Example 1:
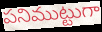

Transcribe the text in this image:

పనిముట్టుగా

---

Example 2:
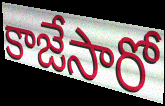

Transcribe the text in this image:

కాజేసారో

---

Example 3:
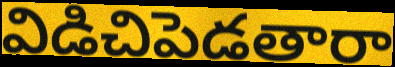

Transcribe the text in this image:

విడిచిపెడతారా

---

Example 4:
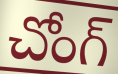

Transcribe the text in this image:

చోంగ్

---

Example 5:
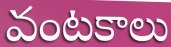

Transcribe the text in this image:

వంటకాలు